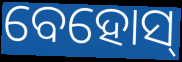
ବେହୋସ୍